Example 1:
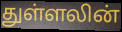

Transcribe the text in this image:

துள்ளலின்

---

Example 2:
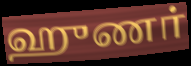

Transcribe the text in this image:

ஹுணர்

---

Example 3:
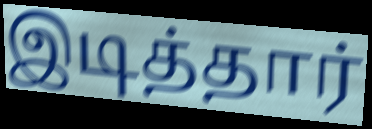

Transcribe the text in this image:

இடித்தார்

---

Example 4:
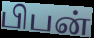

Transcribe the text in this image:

பிபன்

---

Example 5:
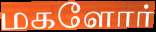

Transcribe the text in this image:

மகளோர்